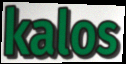
kalos